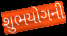
શુભયોગની